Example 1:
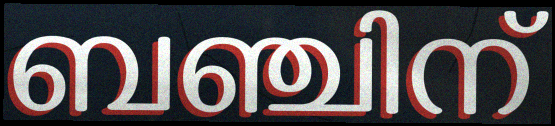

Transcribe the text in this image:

ബഞ്ചിന്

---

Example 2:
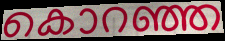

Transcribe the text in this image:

കൊറഞ്ഞ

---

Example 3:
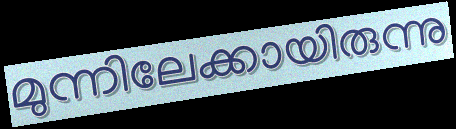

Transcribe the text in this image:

മുന്നിലേക്കായിരുന്നു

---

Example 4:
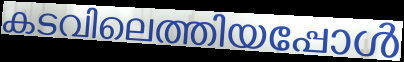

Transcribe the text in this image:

കടവിലെത്തിയപ്പോൾ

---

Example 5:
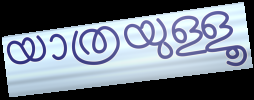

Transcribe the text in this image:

യാത്രയുള്ളൂ